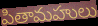
పితామహులు